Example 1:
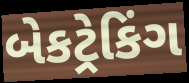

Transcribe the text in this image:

બેકટ્રેકિંગ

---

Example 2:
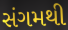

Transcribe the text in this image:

સંગમથી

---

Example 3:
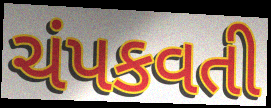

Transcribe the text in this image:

ચંપકવતી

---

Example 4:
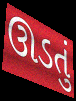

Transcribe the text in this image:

ઊડતું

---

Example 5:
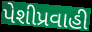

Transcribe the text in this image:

પેશીપ્રવાહી